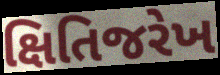
ક્ષિતિજરેખ